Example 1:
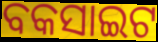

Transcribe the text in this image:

ବକସାଇଟ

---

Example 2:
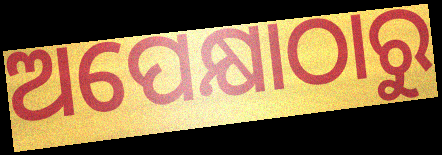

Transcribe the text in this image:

ଅପେକ୍ଷାଠାରୁ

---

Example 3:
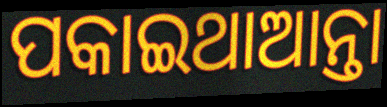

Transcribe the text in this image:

ପକାଇଥାଆନ୍ତା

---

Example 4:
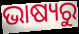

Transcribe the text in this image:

ଭାଷ୍ୟରୁ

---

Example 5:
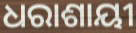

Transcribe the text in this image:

ଧରାଶାୟୀ